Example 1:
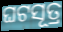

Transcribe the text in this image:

ଘଟସୂତ୍ର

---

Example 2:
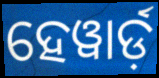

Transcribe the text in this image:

ହେୱାର୍ଡ଼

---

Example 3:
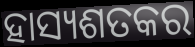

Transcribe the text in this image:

ହାସ୍ୟଶତକର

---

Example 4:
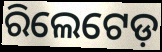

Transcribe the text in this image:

ରିଲେଟେଡ଼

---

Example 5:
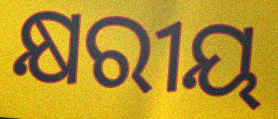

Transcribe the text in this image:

କ୍ଷରୀୟ